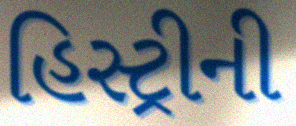
હિસ્ટ્રીની